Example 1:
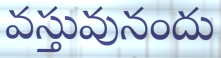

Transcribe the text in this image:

వస్తువునందు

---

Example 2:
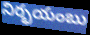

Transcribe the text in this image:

నిర్భయంబు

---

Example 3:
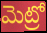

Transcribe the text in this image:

మెట్రో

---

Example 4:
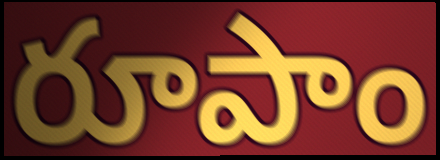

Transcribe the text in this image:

రూపాం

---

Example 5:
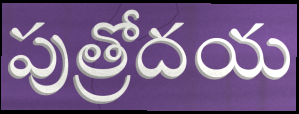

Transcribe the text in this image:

పుత్రోదయ